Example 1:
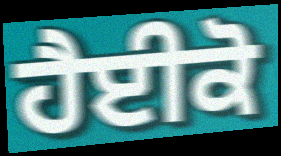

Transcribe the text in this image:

ਹੈਈਕੋ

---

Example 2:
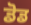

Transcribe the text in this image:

ਡੋਡ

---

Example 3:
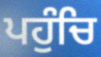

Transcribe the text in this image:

ਪਹੁੰਚਿ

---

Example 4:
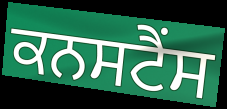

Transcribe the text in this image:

ਕਨਸਟੈਂਸ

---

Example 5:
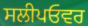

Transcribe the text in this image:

ਸਲੀਪਓਵਰ